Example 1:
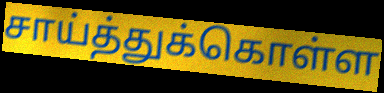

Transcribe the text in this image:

சாய்த்துக்கொள்ள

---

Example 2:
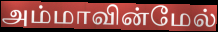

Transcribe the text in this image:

அம்மாவின்மேல்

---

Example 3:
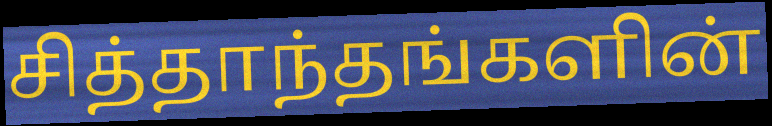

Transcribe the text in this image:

சித்தாந்தங்களின்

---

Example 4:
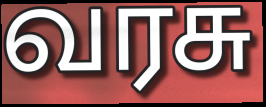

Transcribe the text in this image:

வரசு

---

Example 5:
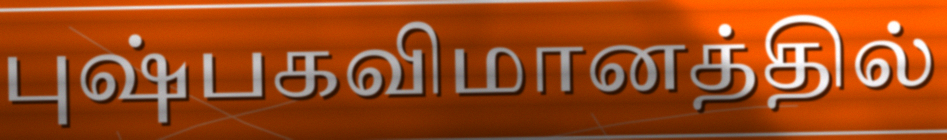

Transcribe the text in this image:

புஷ்பகவிமானத்தில்